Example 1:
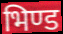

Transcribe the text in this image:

भिण्‍ड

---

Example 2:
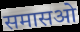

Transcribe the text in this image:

समासओ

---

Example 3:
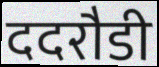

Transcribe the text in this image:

ददरौडी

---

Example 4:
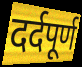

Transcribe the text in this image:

दर्दपूर्ण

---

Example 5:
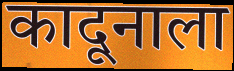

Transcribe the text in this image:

कादूनाला